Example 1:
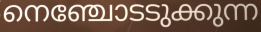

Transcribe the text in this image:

നെഞ്ചോടടുക്കുന്ന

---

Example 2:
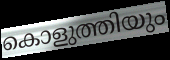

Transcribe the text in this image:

കൊളുത്തിയും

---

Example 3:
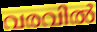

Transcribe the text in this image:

വരവിൽ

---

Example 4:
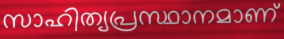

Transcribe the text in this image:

സാഹിത്യപ്രസ്ഥാനമാണ്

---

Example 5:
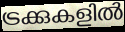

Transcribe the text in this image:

ട്രക്കുകളിൽ